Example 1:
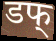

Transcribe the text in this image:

डफ्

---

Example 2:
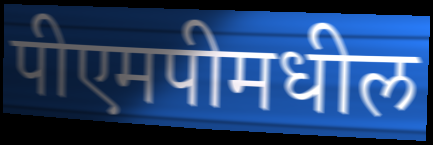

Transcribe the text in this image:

पीएमपीमधील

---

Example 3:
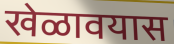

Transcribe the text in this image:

खेळावयास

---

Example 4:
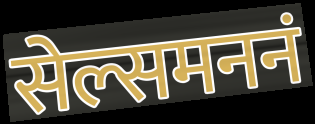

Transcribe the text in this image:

सेल्समननं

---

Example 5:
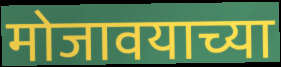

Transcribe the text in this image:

मोजावयाच्या